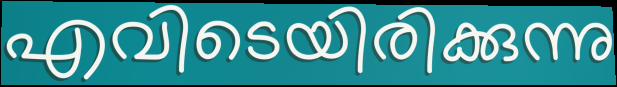
എവിടെയിരിക്കുന്നു